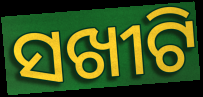
ସଖୀଟି